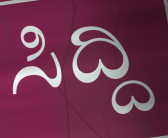
ಸಿದ್ದಿ